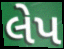
લેપ